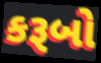
કરૂબો